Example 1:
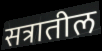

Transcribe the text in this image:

सत्रातील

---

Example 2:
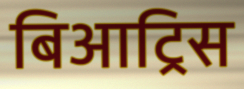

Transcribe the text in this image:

बिआट्रिस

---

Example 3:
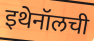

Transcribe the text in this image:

इथेनॉलची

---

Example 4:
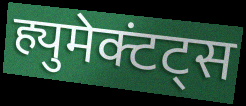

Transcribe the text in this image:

ह्युमेक्टंट्स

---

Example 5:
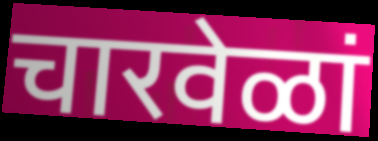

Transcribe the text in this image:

चारवेळां